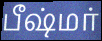
பீஷ்மர்